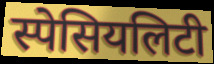
स्पेसियलिटी